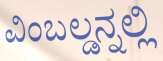
ವಿಂಬಲ್ಡನ್ನಲ್ಲಿ